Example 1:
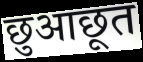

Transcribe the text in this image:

छुआछूत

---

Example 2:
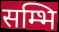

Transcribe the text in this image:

सम्भि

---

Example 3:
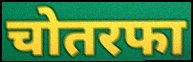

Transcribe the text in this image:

चोतरफा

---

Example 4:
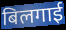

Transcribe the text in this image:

बिलगाई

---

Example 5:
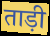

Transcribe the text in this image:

ताड़ी